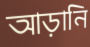
আড়ানি